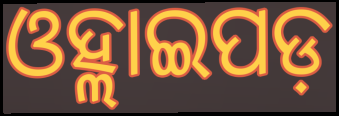
ଓହ୍ଲାଇପଡ଼